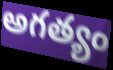
అగత్యం